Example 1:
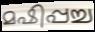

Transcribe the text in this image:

മഷിപ്പച്ച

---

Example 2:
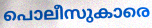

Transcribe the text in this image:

പൊലീസുകാരെ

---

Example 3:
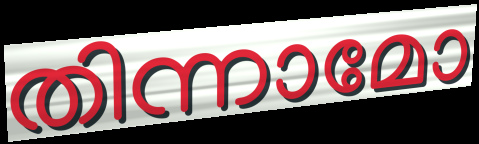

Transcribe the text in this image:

തിന്നാമോ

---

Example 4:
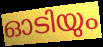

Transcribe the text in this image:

ഓടിയും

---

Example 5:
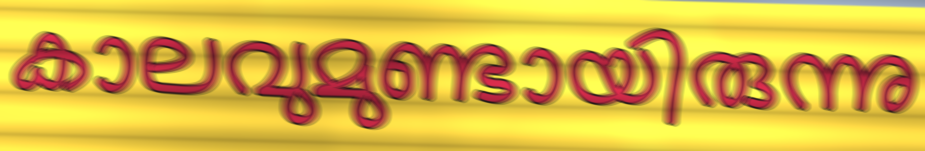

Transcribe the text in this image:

കാലവുമുണ്ടായിരുന്നു